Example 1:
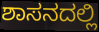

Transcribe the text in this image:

ಶಾಸನದಲ್ಲಿ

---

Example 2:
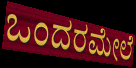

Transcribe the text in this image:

ಒಂದರಮೇಲೆ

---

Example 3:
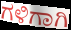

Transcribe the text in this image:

ಗಳಿಗಾಗಿ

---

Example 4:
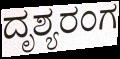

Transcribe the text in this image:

ದೃಶ್ಯರಂಗ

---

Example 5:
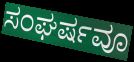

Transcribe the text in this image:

ಸಂಘರ್ಷವೂ